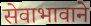
सेवाभावाने